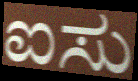
ಐಸು